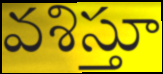
వశిస్తూ